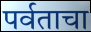
पर्वताचा